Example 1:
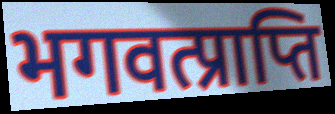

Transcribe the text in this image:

भगवत्प्राप्ति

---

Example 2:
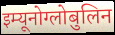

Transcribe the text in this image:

इम्यूनोग्लोबुलिन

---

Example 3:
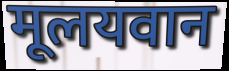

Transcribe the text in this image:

मूलयवान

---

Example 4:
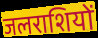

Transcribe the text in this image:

जलराशियों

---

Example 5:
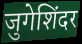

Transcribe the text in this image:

जुगेशिंदर